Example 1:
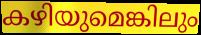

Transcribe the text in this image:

കഴിയുമെങ്കിലും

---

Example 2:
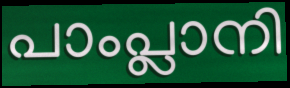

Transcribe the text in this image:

പാംപ്ലാനി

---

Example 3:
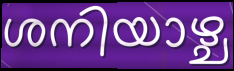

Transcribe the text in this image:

ശനിയാഴ്ച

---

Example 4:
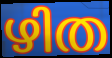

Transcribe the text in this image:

ഴിത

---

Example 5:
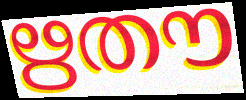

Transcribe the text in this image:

ഋതൗ